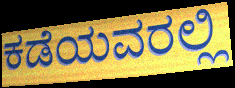
ಕಡೆಯವರಲ್ಲಿ